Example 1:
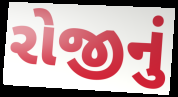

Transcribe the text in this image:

રોજીનું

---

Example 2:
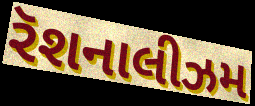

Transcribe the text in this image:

રૅશનાલીઝમ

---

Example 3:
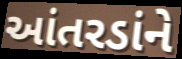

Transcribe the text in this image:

આંતરડાંને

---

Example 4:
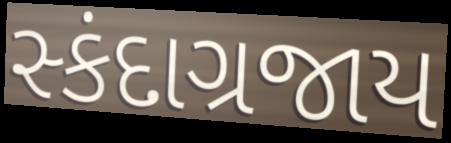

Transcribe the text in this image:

સ્કંદાગ્રજાય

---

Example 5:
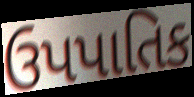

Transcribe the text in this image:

ઉપપાતિક